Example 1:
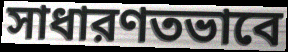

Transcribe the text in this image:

সাধারণতভাবে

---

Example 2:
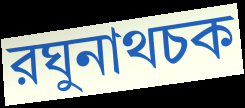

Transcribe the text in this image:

রঘুনাথচক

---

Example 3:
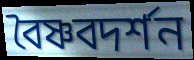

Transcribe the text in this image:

বৈষ্ণবদর্শন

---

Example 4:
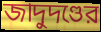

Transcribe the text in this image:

জাদুদণ্ডের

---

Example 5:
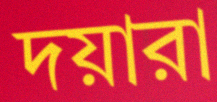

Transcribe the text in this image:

দয়ারা